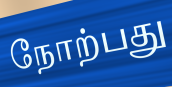
நோற்பது